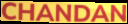
CHANDAN